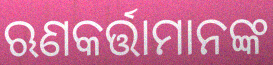
ଋଣକର୍ତ୍ତାମାନଙ୍କ